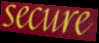
secure